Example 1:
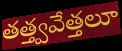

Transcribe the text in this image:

తత్త్వవేత్తలూ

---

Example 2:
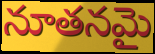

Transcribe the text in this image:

నూతనమై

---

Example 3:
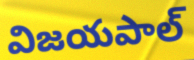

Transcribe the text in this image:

విజయపాల్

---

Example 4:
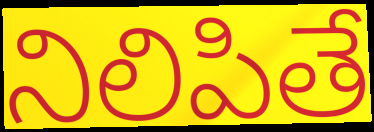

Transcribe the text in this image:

నిలిపితే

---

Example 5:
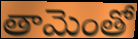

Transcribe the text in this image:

తామెంతో